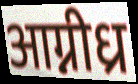
आग्नीध्र